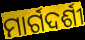
ମାର୍ଗଦର୍ଶୀ